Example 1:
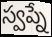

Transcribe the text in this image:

స్వప్నే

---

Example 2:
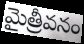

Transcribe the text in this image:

మైత్రీవనం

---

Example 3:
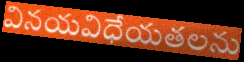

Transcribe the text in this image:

వినయవిధేయతలను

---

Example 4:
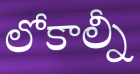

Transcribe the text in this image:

లోకాల్నీ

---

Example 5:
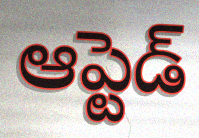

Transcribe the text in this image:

ఆప్టెడ్